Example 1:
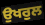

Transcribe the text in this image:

ਉਖਰੁਲ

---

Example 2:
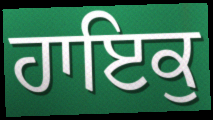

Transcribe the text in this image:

ਹਾਇਕੁ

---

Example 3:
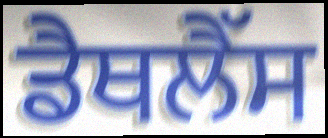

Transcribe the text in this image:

ਡੈਥਲੈੱਸ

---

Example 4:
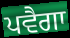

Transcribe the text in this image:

ਪਵੈਗਾ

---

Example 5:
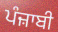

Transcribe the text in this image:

ਪੰਜ਼ਾਬੀ